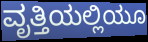
ವೃತ್ತಿಯಲ್ಲಿಯೂ